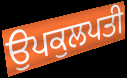
ਉਪਕੁਲਪਤੀ